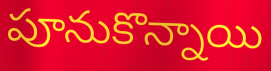
పూనుకొన్నాయి